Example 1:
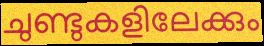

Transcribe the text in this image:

ചുണ്ടുകളിലേക്കും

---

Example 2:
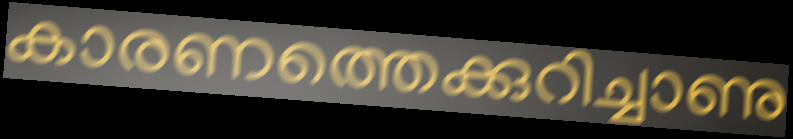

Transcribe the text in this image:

കാരണത്തെക്കുറിച്ചാണു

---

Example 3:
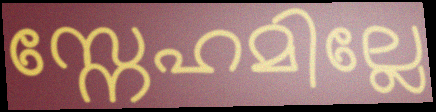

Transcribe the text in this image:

സ്നേഹമില്ലേ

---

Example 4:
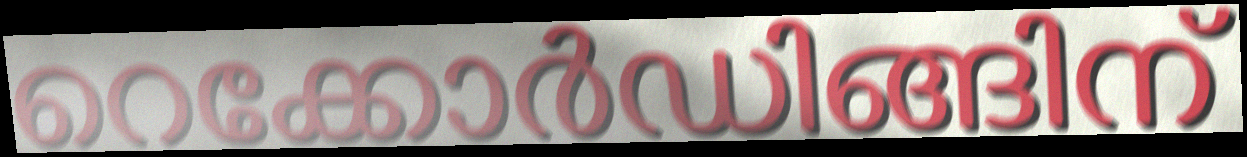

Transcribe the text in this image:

റെക്കോർഡിങ്ങിന്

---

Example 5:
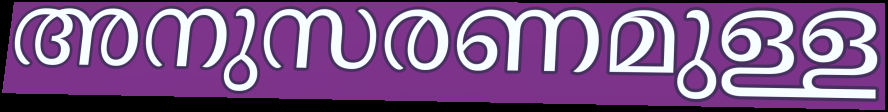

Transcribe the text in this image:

അനുസരണമുള്ള